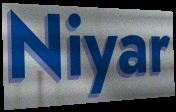
Niyar